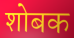
शोबक